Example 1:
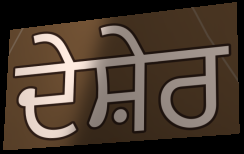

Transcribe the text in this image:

ਦੇਸ਼ੇਰ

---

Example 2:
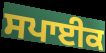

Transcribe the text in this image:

ਸਪਾਈਕ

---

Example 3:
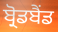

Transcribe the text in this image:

ਬ੍ਰੋਡਬੈਂਡ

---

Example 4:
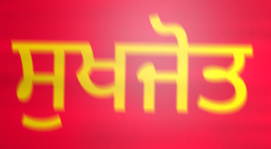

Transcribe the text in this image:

ਸੁਖਜੋਤ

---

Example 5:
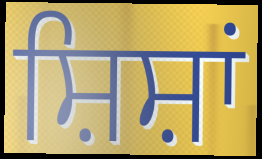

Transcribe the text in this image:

ਸ਼ਿਸ਼ਾਂ